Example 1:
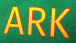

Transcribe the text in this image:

ARK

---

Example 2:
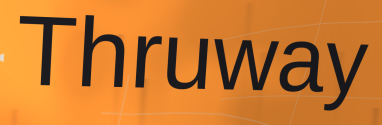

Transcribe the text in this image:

Thruway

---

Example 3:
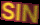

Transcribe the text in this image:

SIN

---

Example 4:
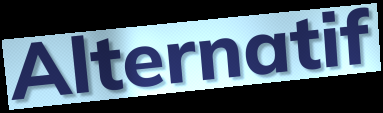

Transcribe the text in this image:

Alternatif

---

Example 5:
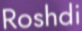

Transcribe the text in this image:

Roshdi